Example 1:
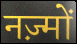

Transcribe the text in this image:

नज़्मों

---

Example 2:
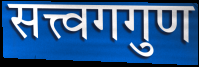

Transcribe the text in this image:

सत्त्वगगुण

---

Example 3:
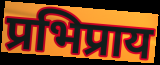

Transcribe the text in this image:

प्रभिप्राय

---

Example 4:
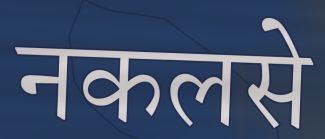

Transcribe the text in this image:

नकलसे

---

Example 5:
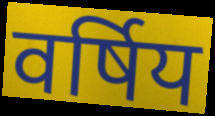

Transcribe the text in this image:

वर्षिय